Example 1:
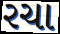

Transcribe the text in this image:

રચા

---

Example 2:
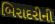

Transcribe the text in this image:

બિરાદરીની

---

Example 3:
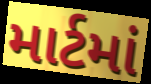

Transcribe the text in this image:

માર્ટમાં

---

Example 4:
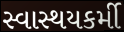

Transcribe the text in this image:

સ્વાસ્થયકર્મી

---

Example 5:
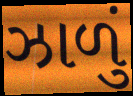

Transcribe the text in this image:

ઝાળું